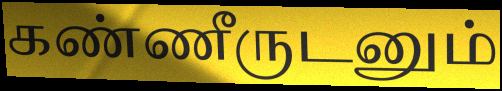
கண்ணீருடனும்